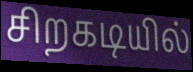
சிறகடியில்